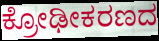
ಕ್ರೋಢೀಕರಣದ